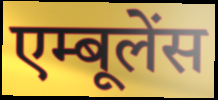
एम्बूलेंस